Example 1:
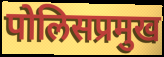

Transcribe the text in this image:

पोलिसप्रमुख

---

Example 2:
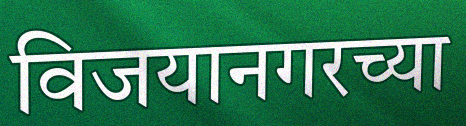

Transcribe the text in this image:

विजयानगरच्या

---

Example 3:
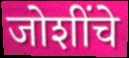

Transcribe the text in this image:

जोशींचे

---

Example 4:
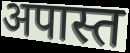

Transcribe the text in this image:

अपास्त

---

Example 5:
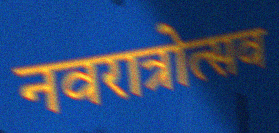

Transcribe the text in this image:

नवरात्रोत्सव